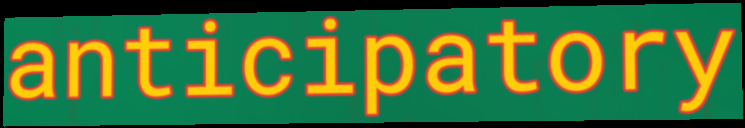
anticipatory